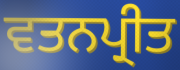
ਵਤਨਪ੍ਰੀਤ